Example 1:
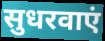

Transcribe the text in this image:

सुधरवाएं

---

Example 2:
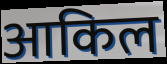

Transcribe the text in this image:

आकिल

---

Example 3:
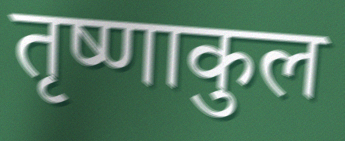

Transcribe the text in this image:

तृष्णाकुल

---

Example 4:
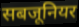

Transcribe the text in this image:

सबजूनियर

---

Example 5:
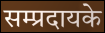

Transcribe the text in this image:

सम्प्रदायके